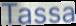
Tassa